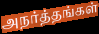
அநர்த்தங்கள்